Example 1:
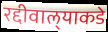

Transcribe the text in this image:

रद्दीवाल्याकडे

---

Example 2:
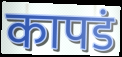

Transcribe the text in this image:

कापडं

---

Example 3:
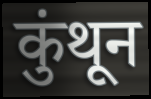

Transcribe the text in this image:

कुंथून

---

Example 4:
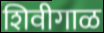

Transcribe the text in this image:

शिवीगाळ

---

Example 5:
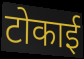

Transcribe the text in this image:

टोकाई